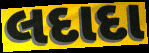
લદાદા